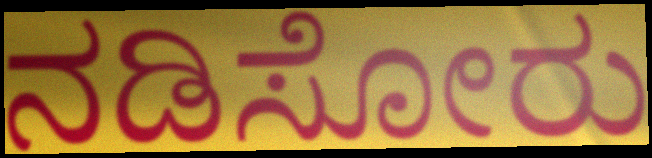
ನಡಿಸೋರು